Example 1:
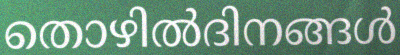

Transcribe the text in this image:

തൊഴിൽദിനങ്ങൾ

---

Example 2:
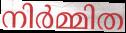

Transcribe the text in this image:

നിർമ്മിത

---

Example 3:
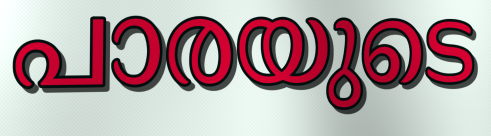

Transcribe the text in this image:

പാരയുടെ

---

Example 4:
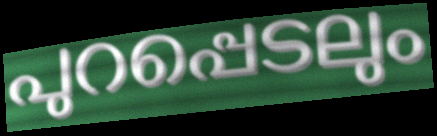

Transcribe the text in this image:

പുറപ്പെടലും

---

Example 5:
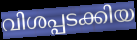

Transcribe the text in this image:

വിശപ്പടക്കിയ